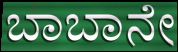
ಬಾಬಾನೇ